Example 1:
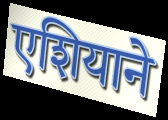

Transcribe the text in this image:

एशियाने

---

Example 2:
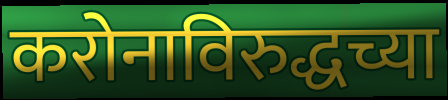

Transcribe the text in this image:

करोनाविरुद्धच्या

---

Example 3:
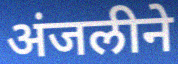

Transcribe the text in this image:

अंजलीने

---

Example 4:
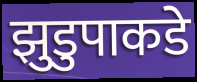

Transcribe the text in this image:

झुडुपाकडे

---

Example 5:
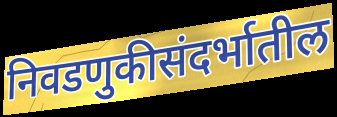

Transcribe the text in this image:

निवडणुकीसंदर्भातील